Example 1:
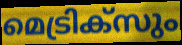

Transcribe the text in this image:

മെട്രിക്സും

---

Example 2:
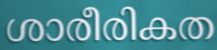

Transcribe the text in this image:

ശാരീരികത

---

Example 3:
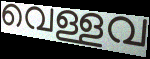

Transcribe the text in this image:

വെള്ളവ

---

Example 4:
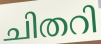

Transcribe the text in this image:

ചിതറി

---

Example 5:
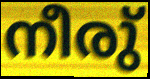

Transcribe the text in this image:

നീരു്